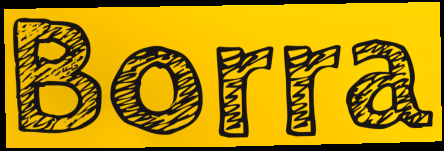
Borra